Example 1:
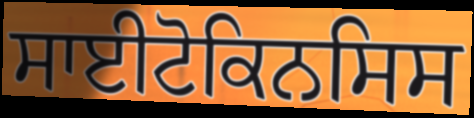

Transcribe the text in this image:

ਸਾਈਟੋਕਿਨਸਿਸ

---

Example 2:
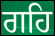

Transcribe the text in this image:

ਗਹਿ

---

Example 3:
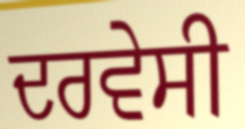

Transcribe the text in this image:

ਦਰਵੇਸੀ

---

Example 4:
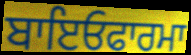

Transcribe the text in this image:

ਬਾਇਓਫਾਰਮਾ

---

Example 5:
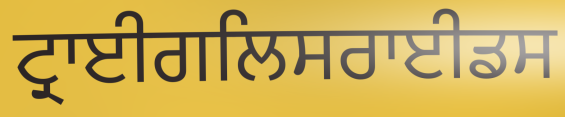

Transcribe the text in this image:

ਟ੍ਰਾਈਗਲਿਸਰਾਈਡਸ